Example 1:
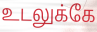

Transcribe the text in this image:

உடலுக்கே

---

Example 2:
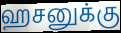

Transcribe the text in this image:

ஹசனுக்கு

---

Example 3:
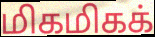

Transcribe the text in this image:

மிகமிகக்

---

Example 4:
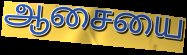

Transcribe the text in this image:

ஆசையை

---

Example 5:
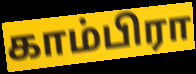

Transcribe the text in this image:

காம்பிரா